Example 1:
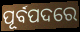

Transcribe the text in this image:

ପୂର୍ବପଦରେ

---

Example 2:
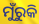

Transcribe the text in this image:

ମୁଁରୁକି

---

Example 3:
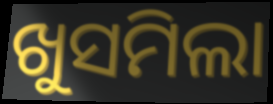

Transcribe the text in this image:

ଖୁସମିଲା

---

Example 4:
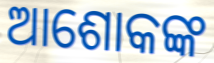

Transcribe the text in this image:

ଆଶୋକଙ୍କ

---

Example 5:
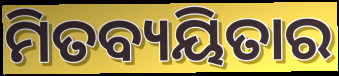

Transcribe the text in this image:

ମିତବ୍ୟୟିତାର